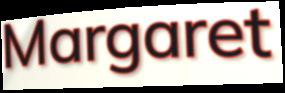
Margaret